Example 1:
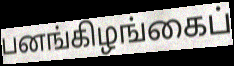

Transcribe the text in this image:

பனங்கிழங்கைப்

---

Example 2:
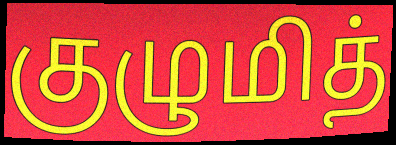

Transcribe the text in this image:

குழுமித்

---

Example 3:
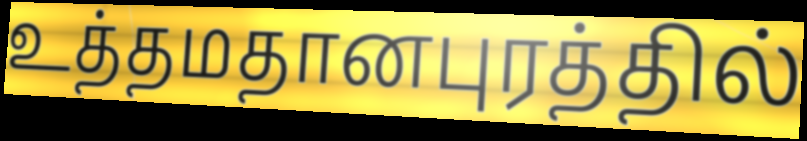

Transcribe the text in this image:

உத்தமதானபுரத்தில்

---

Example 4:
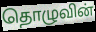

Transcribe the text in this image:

தொழுவின்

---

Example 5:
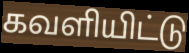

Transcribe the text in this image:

கவளியிட்டு